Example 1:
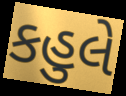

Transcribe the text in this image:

કહુલે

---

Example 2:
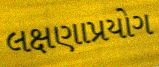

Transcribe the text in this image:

લક્ષણાપ્રયોગ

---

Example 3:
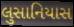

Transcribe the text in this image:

લુસાનિયાસ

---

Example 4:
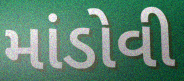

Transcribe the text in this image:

માંડોવી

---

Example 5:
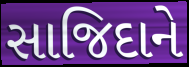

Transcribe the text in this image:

સાજિદાને